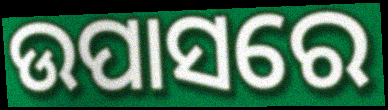
ଉପାସରେ